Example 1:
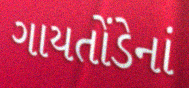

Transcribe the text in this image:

ગાયતોંડેનાં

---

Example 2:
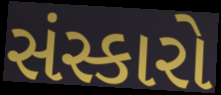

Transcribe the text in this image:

સંસ્કારો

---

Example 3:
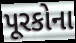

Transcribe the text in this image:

પૂરકોના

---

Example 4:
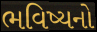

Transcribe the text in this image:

ભવિષ્યનો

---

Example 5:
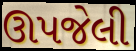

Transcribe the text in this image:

ઊપજેલી